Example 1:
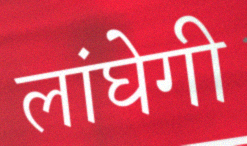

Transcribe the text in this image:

लांघेगी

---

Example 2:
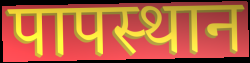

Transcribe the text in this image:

पापस्थान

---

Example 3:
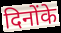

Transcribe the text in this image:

दिनोंके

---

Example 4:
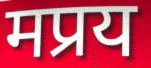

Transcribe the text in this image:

मप्रय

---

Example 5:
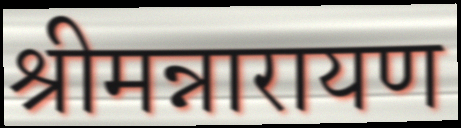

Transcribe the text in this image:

श्रीमन्नारायण